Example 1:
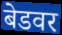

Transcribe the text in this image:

बेडवर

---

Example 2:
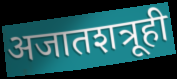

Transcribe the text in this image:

अजातशत्रूही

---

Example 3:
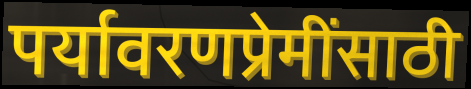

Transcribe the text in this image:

पर्यावरणप्रेमींसाठी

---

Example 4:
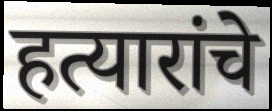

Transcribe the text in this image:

हत्यारांचे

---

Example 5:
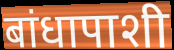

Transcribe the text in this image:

बांधापाशी